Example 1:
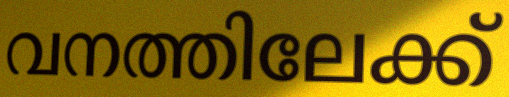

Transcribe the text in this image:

വനത്തിലേക്ക്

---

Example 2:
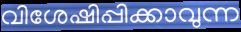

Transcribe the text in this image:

വിശേഷിപ്പിക്കാവുന്ന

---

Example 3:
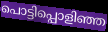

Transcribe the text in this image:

പൊട്ടിപ്പൊളിഞ്ഞ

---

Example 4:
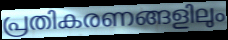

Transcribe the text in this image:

പ്രതികരണങ്ങളിലും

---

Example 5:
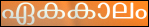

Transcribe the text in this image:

ഏകകാലം